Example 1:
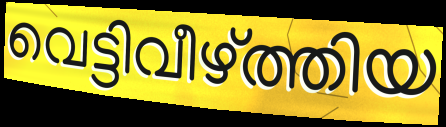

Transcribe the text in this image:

വെട്ടിവീഴ്ത്തിയ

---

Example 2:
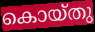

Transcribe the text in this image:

കൊയ്തു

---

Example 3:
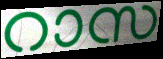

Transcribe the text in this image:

റാസ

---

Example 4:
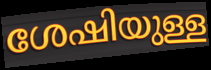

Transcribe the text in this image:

ശേഷിയുള്ള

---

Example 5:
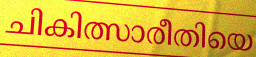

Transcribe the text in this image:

ചികിത്സാരീതിയെ